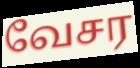
வேசர